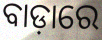
ବାଡ଼ାରେ